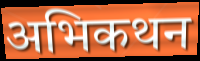
अभिकथन